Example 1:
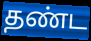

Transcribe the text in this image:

தண்ட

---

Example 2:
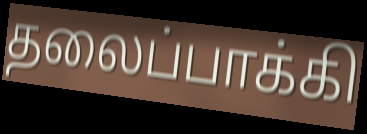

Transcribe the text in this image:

தலைப்பாக்கி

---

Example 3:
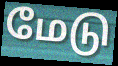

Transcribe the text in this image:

மேடு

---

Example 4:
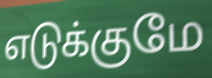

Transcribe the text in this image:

எடுக்குமே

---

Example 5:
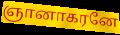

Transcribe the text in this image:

ஞானாகரனே